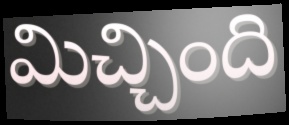
మిచ్చింది